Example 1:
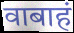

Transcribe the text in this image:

वाबाहं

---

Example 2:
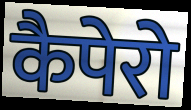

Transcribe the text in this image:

कैपेरो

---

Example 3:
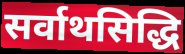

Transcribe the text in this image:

सर्वाथसिद्धि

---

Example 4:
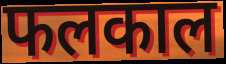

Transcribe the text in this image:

फलकाल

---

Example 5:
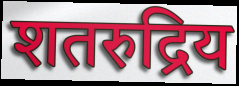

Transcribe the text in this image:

शतरुद्रिय